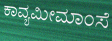
ಕಾವ್ಯಮೀಮಾಂಸೆ